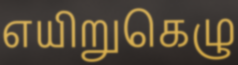
எயிறுகெழு